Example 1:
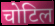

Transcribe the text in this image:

चोटिल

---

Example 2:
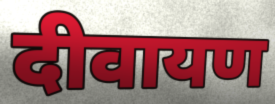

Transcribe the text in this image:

दीवायण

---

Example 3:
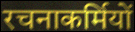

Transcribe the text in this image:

रचनाकर्मियों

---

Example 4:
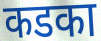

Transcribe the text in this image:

कडका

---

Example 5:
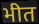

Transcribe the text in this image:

भीत